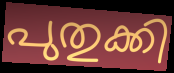
പുതുക്കി